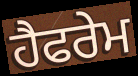
ਹੈਫਰੇਮ